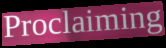
Proclaiming